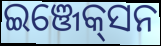
ଇଞ୍ଜେକ୍‌ସନ